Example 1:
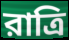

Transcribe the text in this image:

রাত্রি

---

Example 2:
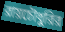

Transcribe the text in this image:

রায়চৌধুরির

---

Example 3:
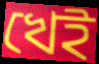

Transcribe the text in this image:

খেই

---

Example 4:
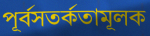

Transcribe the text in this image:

পূর্বসতর্কতামূলক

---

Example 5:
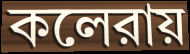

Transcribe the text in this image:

কলেরায়